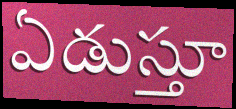
ఏడుస్తూ